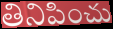
తినిపించు